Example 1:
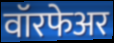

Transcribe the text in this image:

वॉरफेअर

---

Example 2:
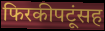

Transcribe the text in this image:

फिरकीपटूंसह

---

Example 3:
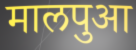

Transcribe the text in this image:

मालपुआ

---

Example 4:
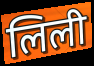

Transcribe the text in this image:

लिली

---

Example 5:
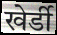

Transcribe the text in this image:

खेर्डी